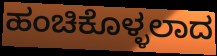
ಹಂಚಿಕೊಳ್ಳಲಾದ